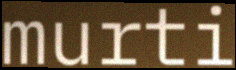
murti